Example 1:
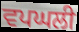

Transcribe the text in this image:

ਵਪਘਲੀ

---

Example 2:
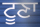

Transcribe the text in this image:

ਟੂਣਾ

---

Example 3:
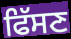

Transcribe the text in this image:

ਫਿੱਸਣ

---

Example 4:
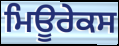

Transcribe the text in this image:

ਮਿਊਰੇਕਸ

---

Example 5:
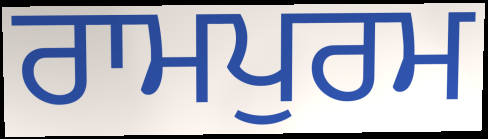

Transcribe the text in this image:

ਰਾਮਪੁਰਮ